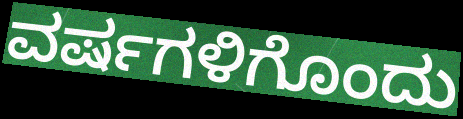
ವರ್ಷಗಳಿಗೊಂದು